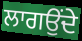
ਲਾਗਉਂਦੇ